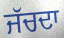
ਜੱਚਦਾ